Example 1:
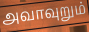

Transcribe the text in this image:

அவாவுறும்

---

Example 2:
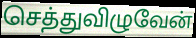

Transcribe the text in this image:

செத்துவிழுவேன்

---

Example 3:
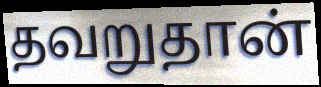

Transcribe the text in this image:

தவறுதான்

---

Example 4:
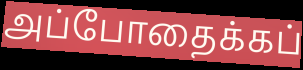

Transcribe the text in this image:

அப்போதைக்கப்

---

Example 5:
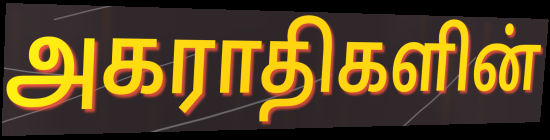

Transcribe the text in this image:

அகராதிகளின்